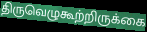
திருவெழுகூற்றிருக்கை